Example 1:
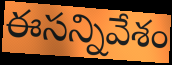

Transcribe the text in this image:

ఈసన్నివేశం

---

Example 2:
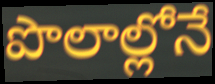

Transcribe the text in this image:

పొలాల్లోనే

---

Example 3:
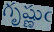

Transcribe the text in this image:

గృష్ణుఁ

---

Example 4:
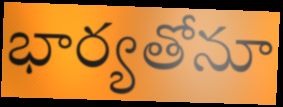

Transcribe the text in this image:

భార్యతోనూ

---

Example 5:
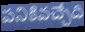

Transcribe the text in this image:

పనికివచ్చేది